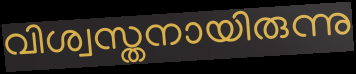
വിശ്വസ്തനായിരുന്നു